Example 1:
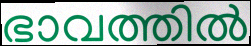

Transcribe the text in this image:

ഭാവത്തിൽ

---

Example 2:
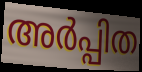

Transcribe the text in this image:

അർപ്പിത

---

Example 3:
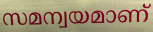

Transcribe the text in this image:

സമന്വയമാണ്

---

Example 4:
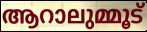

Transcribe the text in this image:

ആറാലുമ്മൂട്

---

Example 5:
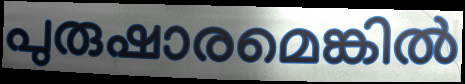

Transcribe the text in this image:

പുരുഷാരമെങ്കിൽ